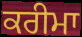
ਕਰੀਮਾ